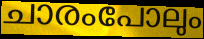
ചാരംപോലും